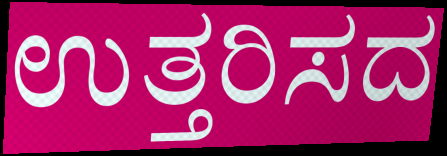
ಉತ್ತರಿಸದ